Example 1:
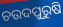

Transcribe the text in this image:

ଚଉଦପୁରୁଷି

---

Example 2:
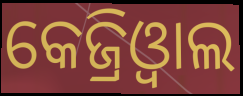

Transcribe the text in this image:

କେଜ୍ରିଓ୍ଵାଲ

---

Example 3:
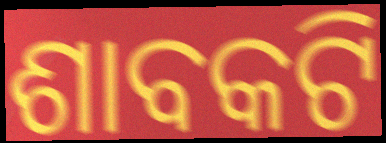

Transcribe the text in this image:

ଶାବକଟି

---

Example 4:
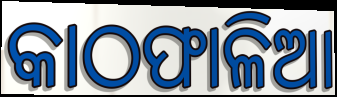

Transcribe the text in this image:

କାଠଫାଳିଆ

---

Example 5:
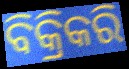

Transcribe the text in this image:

ବିକ୍ରିକରି